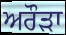
ਅਰੌੜਾ